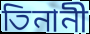
তিনানী